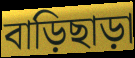
বাড়িছাড়া